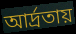
আর্দ্রতায়